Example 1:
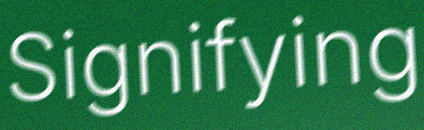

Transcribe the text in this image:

Signifying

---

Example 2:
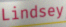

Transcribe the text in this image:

Lindsey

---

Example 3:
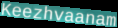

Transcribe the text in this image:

Keezhvaanam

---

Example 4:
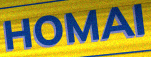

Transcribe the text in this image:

HOMAI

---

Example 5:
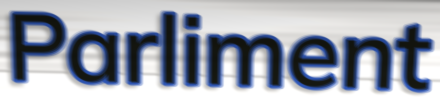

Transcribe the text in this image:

Parliment